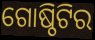
ଗୋଷ୍ଠିଟିର